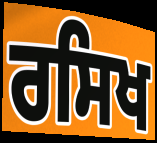
ਰਸਿਖ